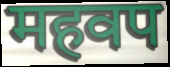
महवप